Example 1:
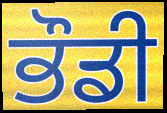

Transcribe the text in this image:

ਭੌਡੀ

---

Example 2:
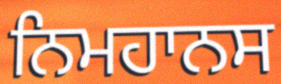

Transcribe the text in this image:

ਨਿਮਹਾਨਸ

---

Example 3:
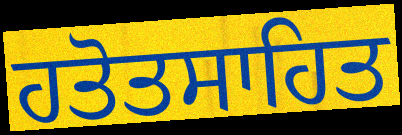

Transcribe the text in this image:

ਹਤੋਤਸਾਹਿਤ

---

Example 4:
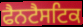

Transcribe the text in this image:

ਫੈਨਟੈਸਟਿਕ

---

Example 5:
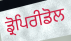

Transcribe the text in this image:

ਡ੍ਰੋਪਿਰੀਡੋਲ